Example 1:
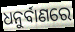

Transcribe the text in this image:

ଧନୁର୍ବାଣରେ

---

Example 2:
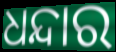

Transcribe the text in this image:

ଧନ୍ଦାର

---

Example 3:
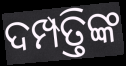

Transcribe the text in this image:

ଦମ୍ପତ୍ତିଙ୍କ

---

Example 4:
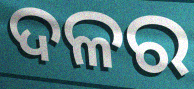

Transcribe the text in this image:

ଦଳର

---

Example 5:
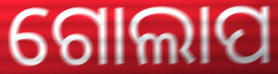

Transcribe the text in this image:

ଗୋଲାପ